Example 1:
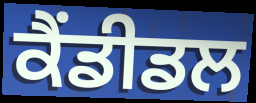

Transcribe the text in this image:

ਕੈਂਡੀਡਲ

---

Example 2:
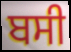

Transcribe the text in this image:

ਬਸੀ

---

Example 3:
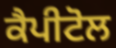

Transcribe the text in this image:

ਕੈਪੀਟੋਲ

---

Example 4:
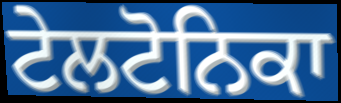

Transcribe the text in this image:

ਟੇਲਟੋਨਿਕਾ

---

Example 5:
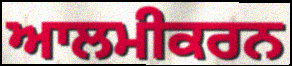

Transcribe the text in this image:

ਆਲਮੀਕਰਨ